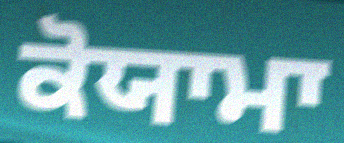
ਕੋਯਾਮਾ